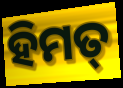
ହିମତ୍